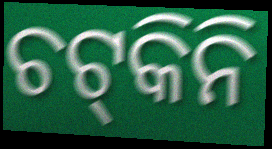
ଚଟ୍‍କିନି